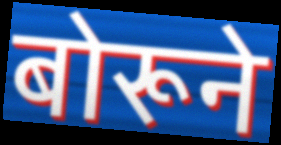
बोरूने